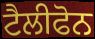
ਟੈਲੀਫੋਨ